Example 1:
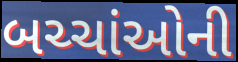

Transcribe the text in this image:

બચ્ચાંઓની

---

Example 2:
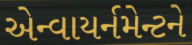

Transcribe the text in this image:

એન્વાયર્નમેન્ટને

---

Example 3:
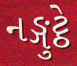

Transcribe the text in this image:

નઙ્ગુટ્ઠે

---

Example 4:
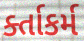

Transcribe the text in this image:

ર્ક્તાકર્મ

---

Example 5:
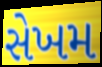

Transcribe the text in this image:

સેખમ